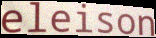
eleison